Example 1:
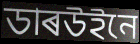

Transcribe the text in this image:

ডাৰউইনে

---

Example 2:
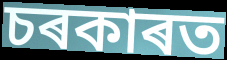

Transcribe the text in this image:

চৰকাৰত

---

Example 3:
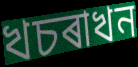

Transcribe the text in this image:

খচৰাখন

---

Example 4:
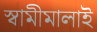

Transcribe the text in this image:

স্বামীমালাই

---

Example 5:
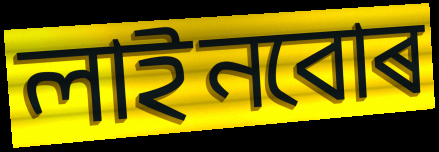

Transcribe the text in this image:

লাইনবোৰ